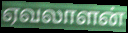
ஏவலாளன்